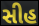
સીહ